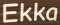
Ekka